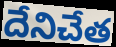
దేనిచేత